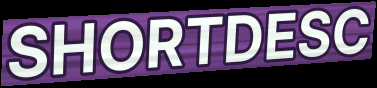
SHORTDESC